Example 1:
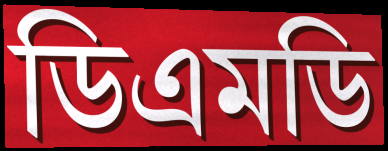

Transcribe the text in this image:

ডিএমডি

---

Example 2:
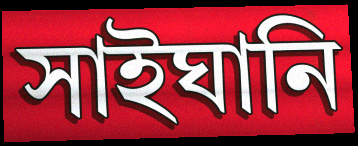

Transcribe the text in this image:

সাইঘানি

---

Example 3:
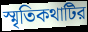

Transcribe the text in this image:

স্মৃতিকথাটির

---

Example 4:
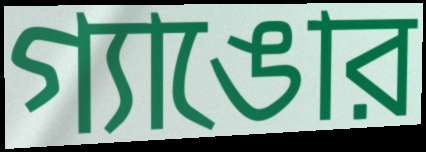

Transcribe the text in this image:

গ্যাঙোর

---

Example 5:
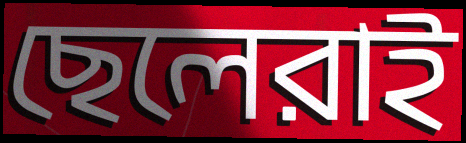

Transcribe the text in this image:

ছেলেরাই